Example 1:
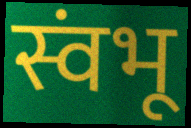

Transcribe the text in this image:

स्वंभू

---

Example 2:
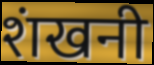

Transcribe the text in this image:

शंखनी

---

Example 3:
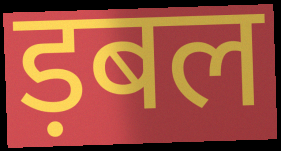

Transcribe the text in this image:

ड़बल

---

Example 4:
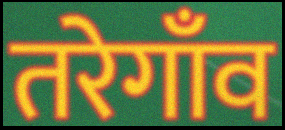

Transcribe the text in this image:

तरेगाँव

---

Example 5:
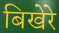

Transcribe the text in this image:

बिखेरे